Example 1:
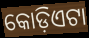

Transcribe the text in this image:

କୋଡ଼ିଏଟା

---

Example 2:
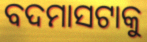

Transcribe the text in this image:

ବଦମାସଟାକୁ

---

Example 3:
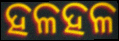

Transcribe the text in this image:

ହଳହଳ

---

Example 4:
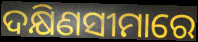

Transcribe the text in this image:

ଦକ୍ଷିଣସୀମାରେ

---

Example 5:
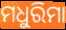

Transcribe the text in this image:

ମଧୁରିମା